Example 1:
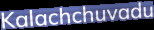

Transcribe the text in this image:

Kalachchuvadu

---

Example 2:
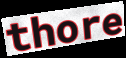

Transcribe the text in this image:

thore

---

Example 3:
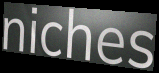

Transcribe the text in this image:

niches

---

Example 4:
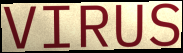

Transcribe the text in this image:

VIRUS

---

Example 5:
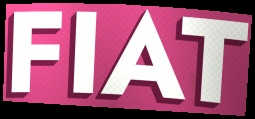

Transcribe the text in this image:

FIAT